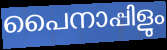
പൈനാപ്പിളും